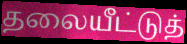
தலையீட்டுத்